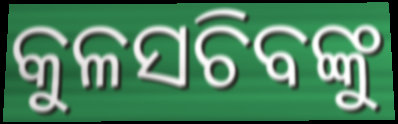
କୁଳସଚିବଙ୍କୁ